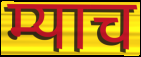
म्याच